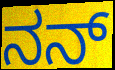
ನನ್